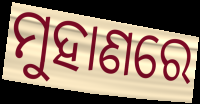
ମୁହାଣରେ